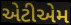
એટીએમ